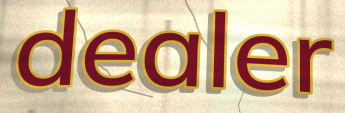
dealer